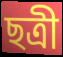
ছত্রী